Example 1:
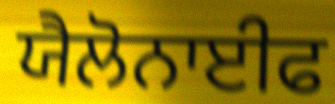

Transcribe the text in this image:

ਯੈਲੋਨਾਈਫ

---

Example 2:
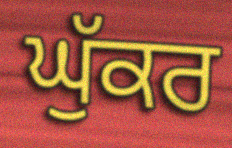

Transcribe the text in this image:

ਘੁੱਕਰ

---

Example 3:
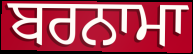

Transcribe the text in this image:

ਬਰਨਾਮਾ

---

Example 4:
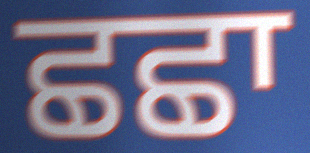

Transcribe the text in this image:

ਛਛਾ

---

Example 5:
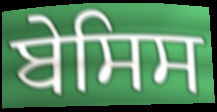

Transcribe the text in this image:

ਬੇਸਿਸ